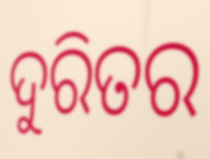
ଦୁରିତର